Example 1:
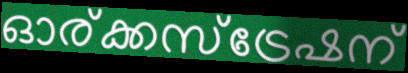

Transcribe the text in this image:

ഓര്ക്കസ്ട്രേഷന്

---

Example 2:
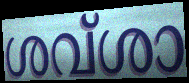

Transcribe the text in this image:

ശവ്ശാ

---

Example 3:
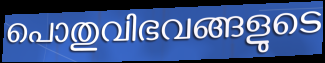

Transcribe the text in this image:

പൊതുവിഭവങ്ങളുടെ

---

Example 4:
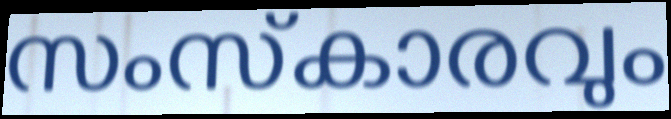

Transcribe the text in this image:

സംസ്‌കാരവും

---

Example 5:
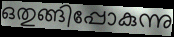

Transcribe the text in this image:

ഒതുങ്ങിപ്പോകുന്നു